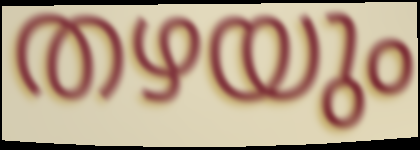
തഴയും